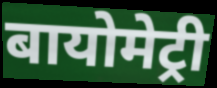
बायोमेट्री